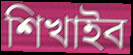
শিখাইব